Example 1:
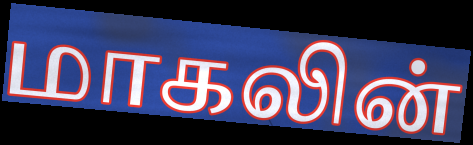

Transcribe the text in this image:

மாகலின்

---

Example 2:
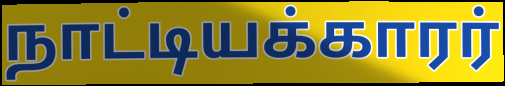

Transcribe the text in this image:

நாட்டியக்காரர்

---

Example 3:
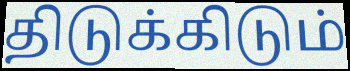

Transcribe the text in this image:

திடுக்கிடும்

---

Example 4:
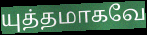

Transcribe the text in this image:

யுத்தமாகவே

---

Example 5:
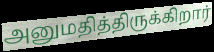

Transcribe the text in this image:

அனுமதித்திருக்கிறார்